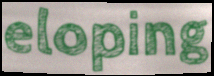
eloping